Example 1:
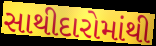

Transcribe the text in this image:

સાથીદારોમાંથી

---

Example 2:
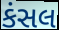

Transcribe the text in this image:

કંસલ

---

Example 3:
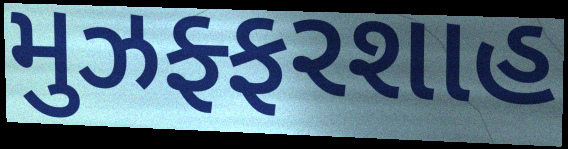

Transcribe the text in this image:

મુઝફ્ફરશાહ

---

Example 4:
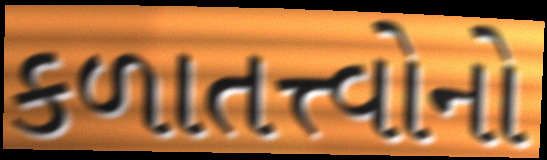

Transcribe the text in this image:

કળાતત્ત્વોનો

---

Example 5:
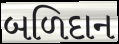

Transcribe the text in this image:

બળિદાન